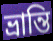
ভ্ৰান্তি